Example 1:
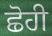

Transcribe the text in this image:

ਛੋਹੀ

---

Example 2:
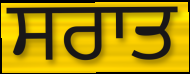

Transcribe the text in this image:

ਸਰਾਤ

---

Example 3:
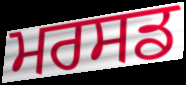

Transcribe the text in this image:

ਮਰਸਡ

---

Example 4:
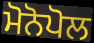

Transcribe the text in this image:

ਮੋਨੋਪੋਲ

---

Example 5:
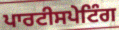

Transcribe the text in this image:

ਪਾਰਟੀਸਪੇਟਿੰਗ